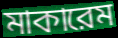
মাকারেম